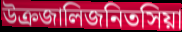
উক্রজালিজনিতসিয়া